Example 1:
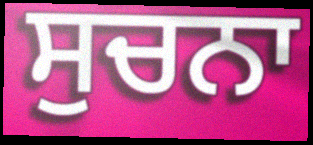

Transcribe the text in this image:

ਸੁਚਨਾ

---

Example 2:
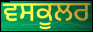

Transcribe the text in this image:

ਵਸਕੂਲਰ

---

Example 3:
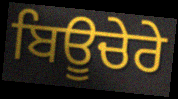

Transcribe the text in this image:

ਬਿਊਚੇਰੇ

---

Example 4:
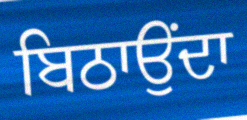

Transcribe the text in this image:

ਬਿਠਾਉਂਦਾ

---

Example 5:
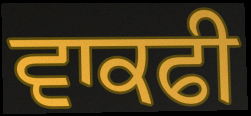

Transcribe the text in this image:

ਵਾਕਫੀ